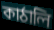
কাঠালি